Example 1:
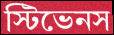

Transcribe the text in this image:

স্টিভেনস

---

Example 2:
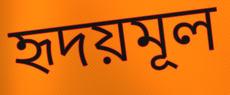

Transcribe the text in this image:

হৃদয়মূল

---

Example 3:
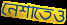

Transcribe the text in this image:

নেশাতেও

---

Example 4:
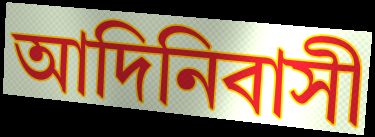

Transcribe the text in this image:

আদিনিবাসী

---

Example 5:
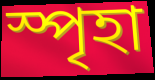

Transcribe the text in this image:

স্পৃহা